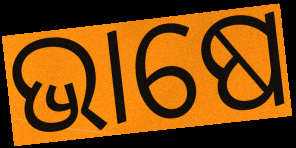
ଭାଷେ